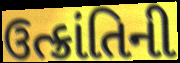
ઉત્ક્રાંતિની